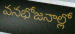
వనభోజనాల్లో